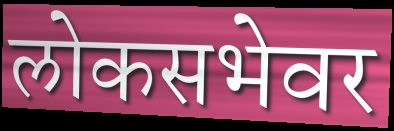
लोकसभेवर